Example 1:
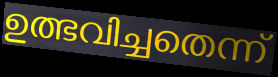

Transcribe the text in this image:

ഉത്ഭവിച്ചതെന്ന്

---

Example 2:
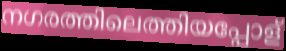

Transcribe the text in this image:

നഗരത്തിലെത്തിയപ്പോള്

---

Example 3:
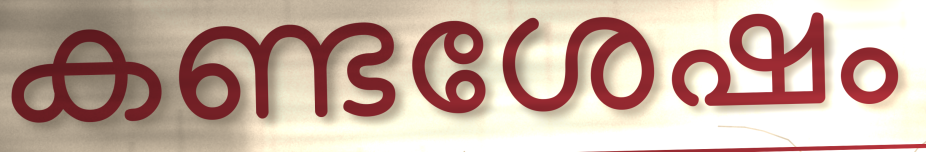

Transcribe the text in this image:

കണ്ടശേഷം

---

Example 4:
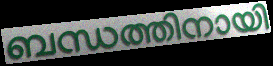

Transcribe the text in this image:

ബന്ധത്തിനായി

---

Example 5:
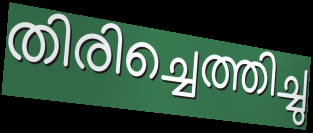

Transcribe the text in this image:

തിരിച്ചെത്തിച്ചു